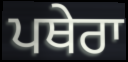
ਪਥੇਰਾ